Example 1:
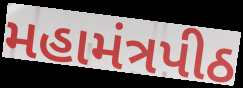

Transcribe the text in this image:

મહામંત્રપીઠ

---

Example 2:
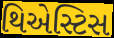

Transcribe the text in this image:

થિએસ્ટિસ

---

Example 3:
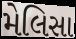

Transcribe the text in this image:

મેલિસા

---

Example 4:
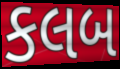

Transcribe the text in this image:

કલબ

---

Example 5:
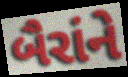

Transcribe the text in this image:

બૈરાંને